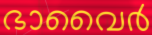
ഭാവൈർ